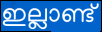
ഇല്ലാണ്ട്